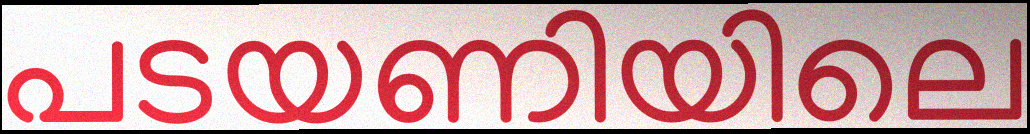
പടയണിയിലെ